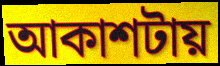
আকাশটায়